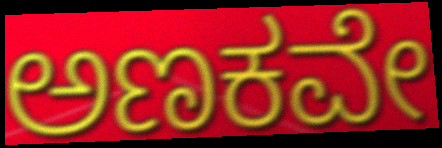
ಅಣಕವೇ